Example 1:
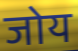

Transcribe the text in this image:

जोय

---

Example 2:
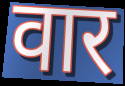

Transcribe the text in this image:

वार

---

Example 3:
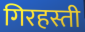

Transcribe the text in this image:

गिरहस्ती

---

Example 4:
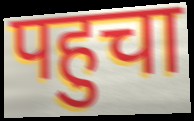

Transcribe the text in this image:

पहुचा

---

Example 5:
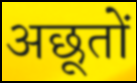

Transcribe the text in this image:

अछूतों